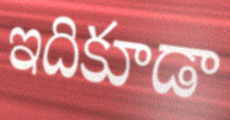
ఇదికూడా